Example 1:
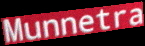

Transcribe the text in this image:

Munnetra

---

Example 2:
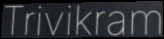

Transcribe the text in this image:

Trivikram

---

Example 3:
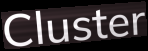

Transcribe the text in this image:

Cluster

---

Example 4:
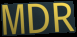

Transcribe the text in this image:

MDR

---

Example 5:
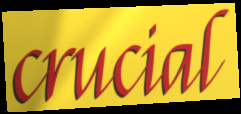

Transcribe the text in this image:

crucial